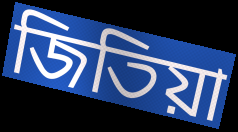
জিতিয়া